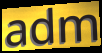
adm